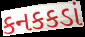
કનકકડાં